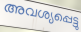
അവശ്യപ്പെട്ടു